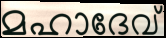
മഹാദേവ്